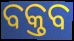
ବକ୍ତବ